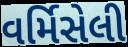
વર્મિસેલી